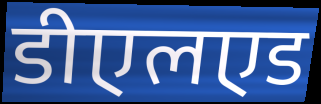
डीएलएड